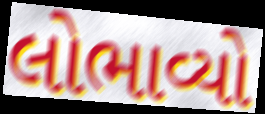
લોભાવ્યો